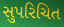
સુપરિચિત